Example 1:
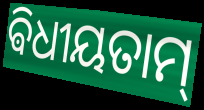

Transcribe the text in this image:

ଵିଧୀୟତାମ୍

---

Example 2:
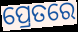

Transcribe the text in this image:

ପ୍ରେତରେ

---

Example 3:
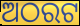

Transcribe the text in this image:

ଅଠରଟ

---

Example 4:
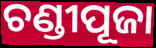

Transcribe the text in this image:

ଚଣ୍ଡୀପୂଜା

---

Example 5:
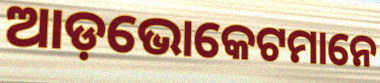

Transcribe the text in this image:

ଆଡ଼ଭୋକେଟମାନେ